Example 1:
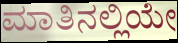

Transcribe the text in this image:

ಮಾತಿನಲ್ಲಿಯೇ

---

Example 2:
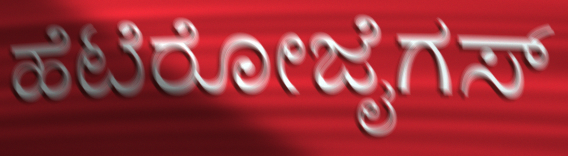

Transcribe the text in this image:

ಹೆಟೆರೋಜೈಗಸ್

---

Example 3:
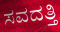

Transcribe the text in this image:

ಸವದತ್ತಿ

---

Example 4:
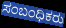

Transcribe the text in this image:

ಸಂಬಂಧಿಕರು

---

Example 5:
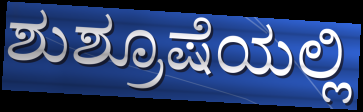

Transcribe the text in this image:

ಶುಶ್ರೂಷೆಯಲ್ಲಿ